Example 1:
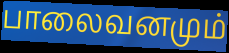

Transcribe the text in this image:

பாலைவனமும்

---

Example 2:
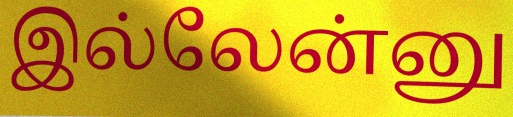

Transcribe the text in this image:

இல்லேன்னு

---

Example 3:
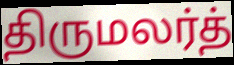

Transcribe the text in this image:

திருமலர்த்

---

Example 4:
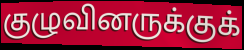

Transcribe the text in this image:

குழுவினருக்குக்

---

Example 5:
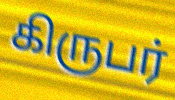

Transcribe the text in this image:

கிருபர்